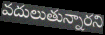
వదులుతున్నారని